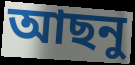
আছনু